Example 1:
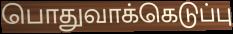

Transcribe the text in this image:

பொதுவாக்கெடுப்பு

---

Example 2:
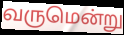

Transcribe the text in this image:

வருமென்று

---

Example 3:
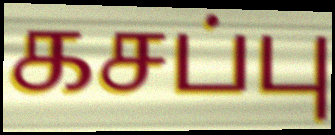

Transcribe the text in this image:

கசப்பு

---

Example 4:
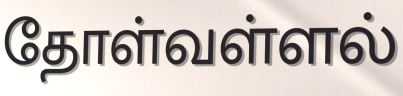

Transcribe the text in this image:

தோள்வள்ளல்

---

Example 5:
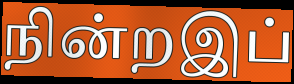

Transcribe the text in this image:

நின்றஇப்